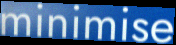
minimise